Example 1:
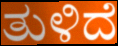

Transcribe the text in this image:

ತುಳಿದೆ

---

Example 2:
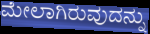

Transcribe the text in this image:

ಮೇಲಾಗಿರುವುದನ್ನು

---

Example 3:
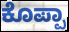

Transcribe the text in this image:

ಕೊಪ್ಪಾ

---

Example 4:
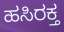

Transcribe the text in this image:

ಹಸಿರಕ್ತ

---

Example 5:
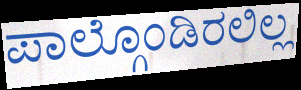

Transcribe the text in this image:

ಪಾಲ್ಗೊಂಡಿರಲಿಲ್ಲ